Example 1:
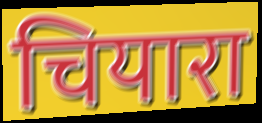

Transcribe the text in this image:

चियारा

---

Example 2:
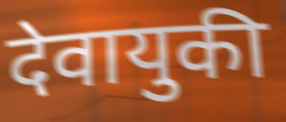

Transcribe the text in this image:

देवायुकी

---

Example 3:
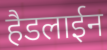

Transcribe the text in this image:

हैडलाईन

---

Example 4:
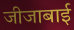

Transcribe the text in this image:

जीजाबाई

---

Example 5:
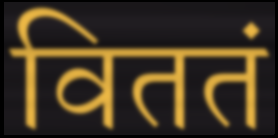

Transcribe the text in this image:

विततं